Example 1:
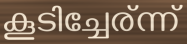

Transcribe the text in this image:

കൂടിച്ചേര്ന്ന്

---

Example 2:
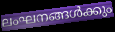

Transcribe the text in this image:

ലംഘനങ്ങൾക്കും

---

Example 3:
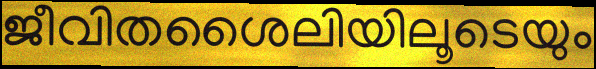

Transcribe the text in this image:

ജീവിതശൈലിയിലൂടെയും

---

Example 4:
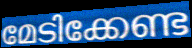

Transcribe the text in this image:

മേടിക്കേണ്ട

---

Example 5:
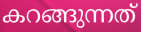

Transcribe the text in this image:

കറങ്ങുന്നത്